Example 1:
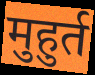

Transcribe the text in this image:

मुहुर्त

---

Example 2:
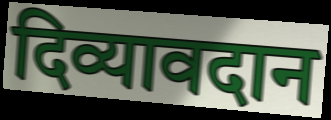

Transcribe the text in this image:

दिव्यावदान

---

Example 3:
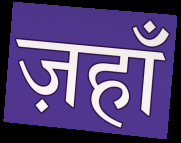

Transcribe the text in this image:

ज़हाँ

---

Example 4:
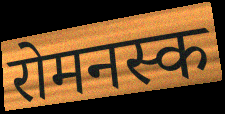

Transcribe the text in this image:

रोमनस्क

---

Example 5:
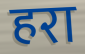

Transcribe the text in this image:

हरा